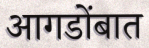
आगडोंबात